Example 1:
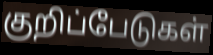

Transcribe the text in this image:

குறிப்பேடுகள்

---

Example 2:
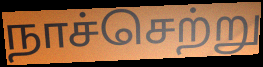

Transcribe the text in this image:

நாச்செற்று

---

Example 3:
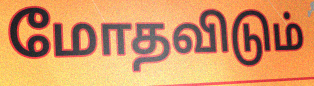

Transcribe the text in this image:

மோதவிடும்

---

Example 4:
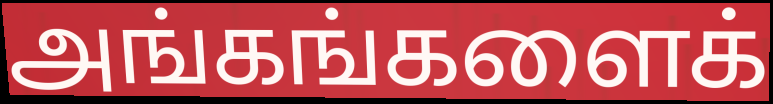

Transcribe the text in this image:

அங்கங்களைக்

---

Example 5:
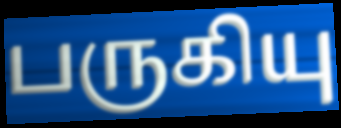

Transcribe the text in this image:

பருகியு